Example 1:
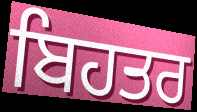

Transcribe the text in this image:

ਬਿਹਤਰ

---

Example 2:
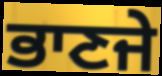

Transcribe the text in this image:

ਭਾਣਜੇ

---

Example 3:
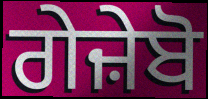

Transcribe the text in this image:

ਗੇਜ਼ੇਬੋ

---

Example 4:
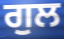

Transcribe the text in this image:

ਗੁਲ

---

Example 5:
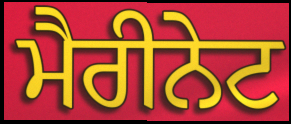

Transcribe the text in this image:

ਮੈਰੀਨੇਟ